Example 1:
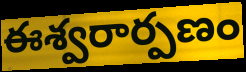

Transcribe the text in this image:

ఈశ్వరార్పణం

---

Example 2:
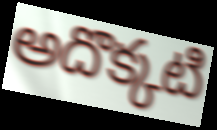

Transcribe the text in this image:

అదొక్కటి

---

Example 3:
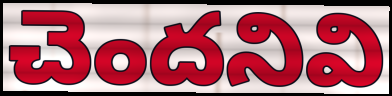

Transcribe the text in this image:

చెందనివి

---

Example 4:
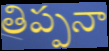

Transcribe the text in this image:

తిప్పనా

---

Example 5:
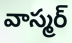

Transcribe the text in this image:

వాస్మర్